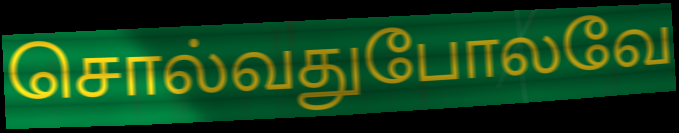
சொல்வதுபோலவே